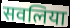
सवलिया